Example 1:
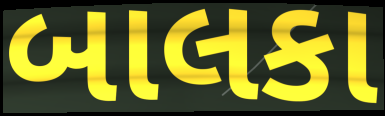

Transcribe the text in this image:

બાલકા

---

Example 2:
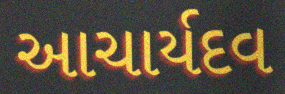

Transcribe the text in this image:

આચાર્યદવ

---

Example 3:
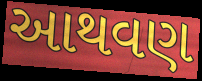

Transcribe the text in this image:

આથવણ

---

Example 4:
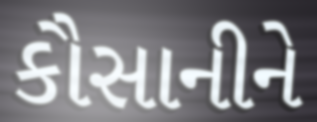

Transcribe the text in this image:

કૌસાનીને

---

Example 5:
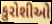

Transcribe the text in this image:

કુરોશીઓ